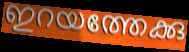
ഇറയത്തേക്കു